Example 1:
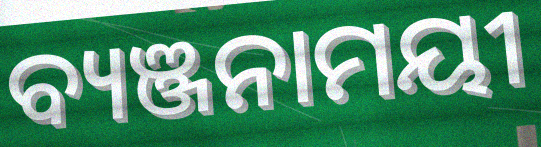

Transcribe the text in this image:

ବ୍ୟଞ୍ଜନାମୟୀ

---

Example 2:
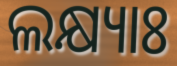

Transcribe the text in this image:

ଲକ୍ଷ୍ୟାଃ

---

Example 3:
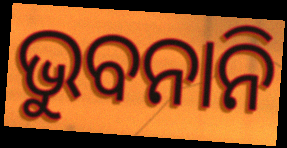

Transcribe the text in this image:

ଭୁବନାନି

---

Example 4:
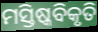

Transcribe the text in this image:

ମସ୍ତିଷ୍କବିକୃତି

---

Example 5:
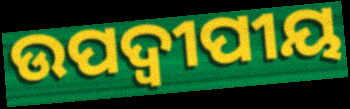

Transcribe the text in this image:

ଉପଦ୍ଵୀପୀୟ